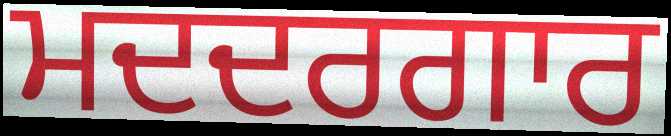
ਮਦਦਰਗਾਰ